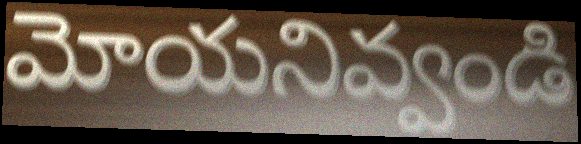
మోయనివ్వండి